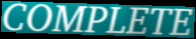
COMPLETE